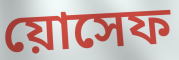
য়োসেফ